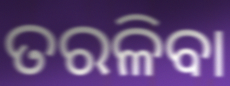
ତରଳିବା